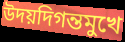
উদয়দিগন্তমুখে